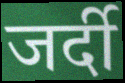
जर्दी